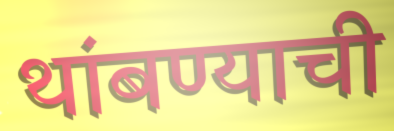
थांबण्याची